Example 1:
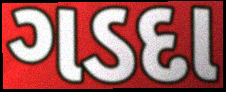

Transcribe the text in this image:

ગડદા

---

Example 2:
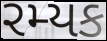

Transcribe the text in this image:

રમ્યક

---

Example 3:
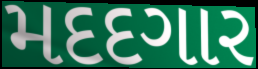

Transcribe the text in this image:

મદદગાર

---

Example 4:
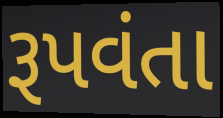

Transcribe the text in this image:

રૂપવંતા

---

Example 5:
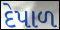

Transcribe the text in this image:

દેપાળ